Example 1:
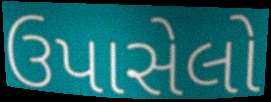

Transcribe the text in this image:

ઉપાસેલો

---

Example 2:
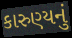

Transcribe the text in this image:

કારુણ્યનું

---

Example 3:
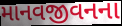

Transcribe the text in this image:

માનવજીવનના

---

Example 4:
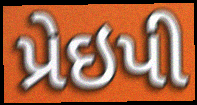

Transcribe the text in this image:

પ્રેઇપી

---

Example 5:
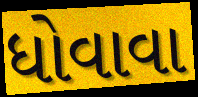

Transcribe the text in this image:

ધોવાવા